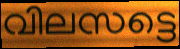
വിലസട്ടെ